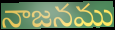
నాజనము